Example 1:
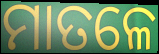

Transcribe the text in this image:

ମାତଳେ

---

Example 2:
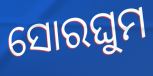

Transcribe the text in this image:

ସୋରଘୁମ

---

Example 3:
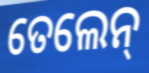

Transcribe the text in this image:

ତେଲେନ୍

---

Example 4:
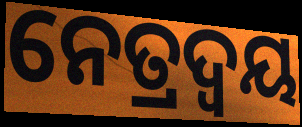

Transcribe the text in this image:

ନେତ୍ରଦ୍ଵୟ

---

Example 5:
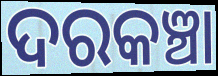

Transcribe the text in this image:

ଦରକଞ୍ଚା